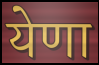
येणा